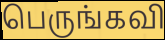
பெருங்கவி